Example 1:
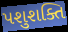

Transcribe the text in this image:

પશુશક્તિ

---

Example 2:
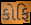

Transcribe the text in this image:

કોફિ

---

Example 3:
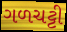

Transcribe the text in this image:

ગળચટ્ટી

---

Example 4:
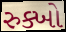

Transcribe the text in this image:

રુક્ખો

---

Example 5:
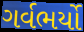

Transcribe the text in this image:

ગર્વભર્યો